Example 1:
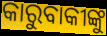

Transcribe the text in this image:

କାରୁବାକୀଙ୍କୁ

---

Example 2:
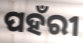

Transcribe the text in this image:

ପହଁରୀ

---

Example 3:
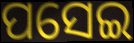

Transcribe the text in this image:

ପସେଇ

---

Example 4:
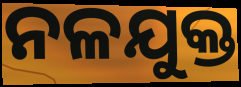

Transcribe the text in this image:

ନଳଯୁକ୍ତ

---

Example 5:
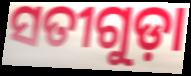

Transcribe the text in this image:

ସତୀଗୁଡ଼ା